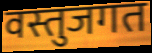
वस्तुजगत